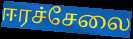
ஈரச்சேலை